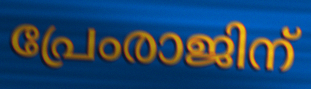
പ്രേംരാജിന്